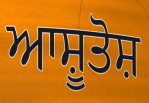
ਆਸ਼ੂਤੋਸ਼